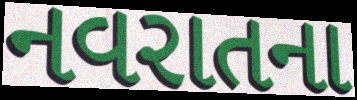
નવરાતના